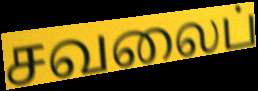
சவலைப்